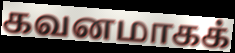
கவனமாகக்